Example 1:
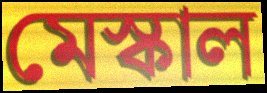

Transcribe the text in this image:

মেস্কাল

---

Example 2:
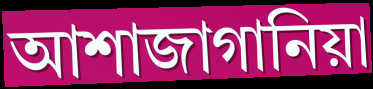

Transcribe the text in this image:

আশাজাগানিয়া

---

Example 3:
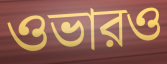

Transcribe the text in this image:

ওভারও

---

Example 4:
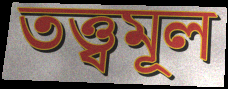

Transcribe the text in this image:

তত্ত্বমূল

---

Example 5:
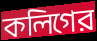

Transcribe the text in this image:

কলিগের